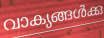
വാക്യങ്ങൾക്കു